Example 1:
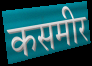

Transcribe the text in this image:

कसमीर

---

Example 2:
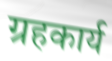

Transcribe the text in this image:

ग्रहकार्य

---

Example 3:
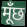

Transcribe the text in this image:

मूँछ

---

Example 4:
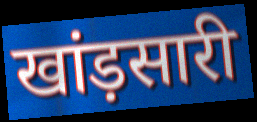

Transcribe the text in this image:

खांड़सारी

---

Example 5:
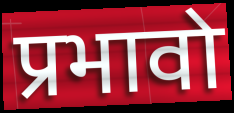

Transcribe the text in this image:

प्रभावो